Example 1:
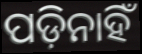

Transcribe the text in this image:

ପଡ଼ିନାହିଁ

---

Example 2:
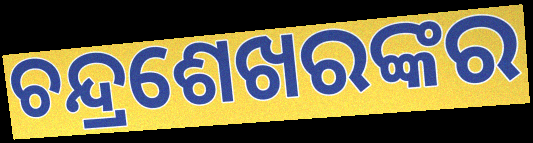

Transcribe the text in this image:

ଚନ୍ଦ୍ରଶେଖରଙ୍କର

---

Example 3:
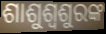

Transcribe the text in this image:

ଶାଶୁଶ୍ୱଶୁରଙ୍କ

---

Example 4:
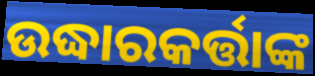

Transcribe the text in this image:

ଉଦ୍ଧାରକର୍ତ୍ତାଙ୍କ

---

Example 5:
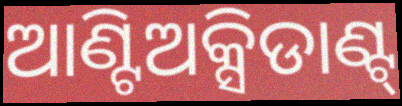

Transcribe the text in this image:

ଆଣ୍ଟିଅକ୍ସିଡାଣ୍ଟ୍